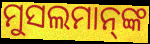
ମୁସଲମାନ୍‍ଙ୍କ